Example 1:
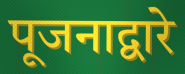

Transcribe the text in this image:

पूजनाद्वारे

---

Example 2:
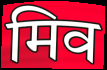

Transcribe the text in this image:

मिव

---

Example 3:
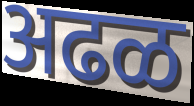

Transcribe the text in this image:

अढळ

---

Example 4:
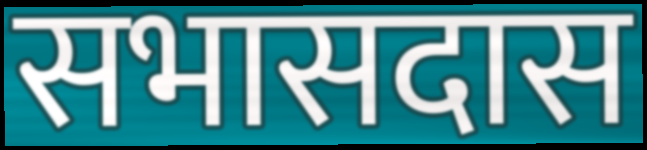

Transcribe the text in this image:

सभासदास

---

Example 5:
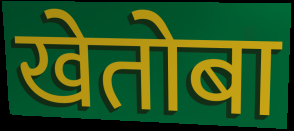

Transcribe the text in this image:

खेतोबा